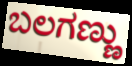
ಬಲಗಣ್ಣು